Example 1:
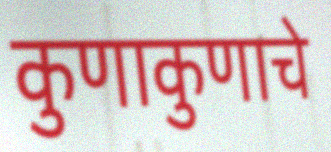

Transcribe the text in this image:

कुणाकुणाचे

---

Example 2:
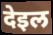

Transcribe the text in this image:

देइल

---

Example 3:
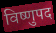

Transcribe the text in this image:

विष्णुपद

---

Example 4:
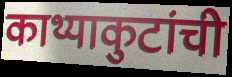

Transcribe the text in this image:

काथ्याकुटांची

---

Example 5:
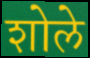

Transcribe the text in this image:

शोले